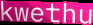
kwethu